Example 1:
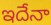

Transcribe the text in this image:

ఇదేనా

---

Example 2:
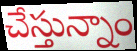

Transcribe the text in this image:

చేస్తున్నాం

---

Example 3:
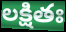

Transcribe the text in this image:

లక్షితః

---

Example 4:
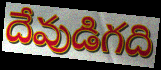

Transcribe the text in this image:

దేవుడిగది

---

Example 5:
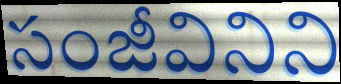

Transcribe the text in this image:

సంజీవినిని